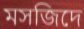
মসজিদে